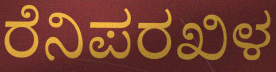
ರೆನಿಪರಖಿಳ